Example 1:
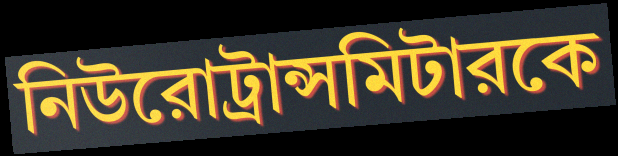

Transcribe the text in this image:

নিউরোট্রান্সমিটারকে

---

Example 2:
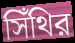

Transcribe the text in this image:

সিঁথির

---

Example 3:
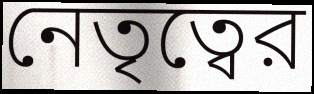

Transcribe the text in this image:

নেতৃত্বের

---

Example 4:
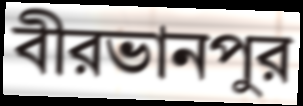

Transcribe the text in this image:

বীরভানপুর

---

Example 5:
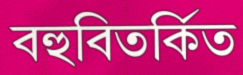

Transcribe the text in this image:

বহুবিতর্কিত